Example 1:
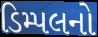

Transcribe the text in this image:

ડિમ્પલનો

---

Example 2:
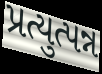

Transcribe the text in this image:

પ્રત્યુત્પન્ન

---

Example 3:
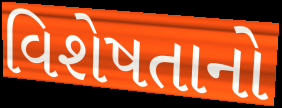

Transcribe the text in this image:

વિશેષતાનો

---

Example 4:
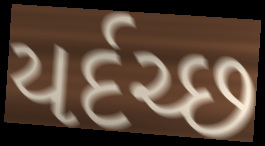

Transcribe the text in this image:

યર્દચ્છ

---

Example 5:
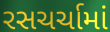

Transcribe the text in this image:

રસચર્ચામાં